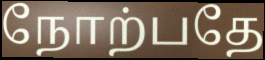
நோற்பதே